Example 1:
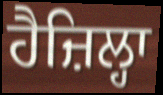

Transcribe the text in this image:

ਹੈਜ਼ਿਲ੍ਹਾ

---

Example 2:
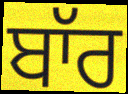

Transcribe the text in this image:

ਬਾੱਰ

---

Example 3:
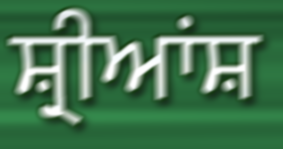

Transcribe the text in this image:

ਸ਼੍ਰੀਆਂਸ਼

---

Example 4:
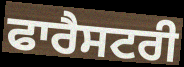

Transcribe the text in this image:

ਫਾਰੈਸਟਰੀ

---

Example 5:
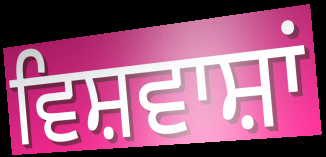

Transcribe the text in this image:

ਵਿਸ਼ਵਾਸ਼ਾਂ